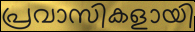
പ്രവാസികളായി